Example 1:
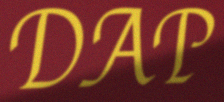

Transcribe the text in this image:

DAP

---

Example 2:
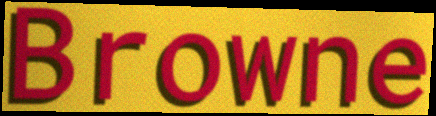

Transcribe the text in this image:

Browne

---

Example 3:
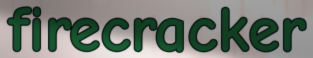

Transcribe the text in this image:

firecracker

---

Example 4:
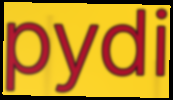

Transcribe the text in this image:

pydi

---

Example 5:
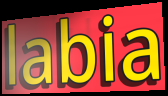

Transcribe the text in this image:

labia